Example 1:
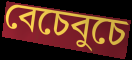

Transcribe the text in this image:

বেচেবুচে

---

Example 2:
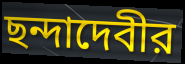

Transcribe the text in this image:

ছন্দাদেবীর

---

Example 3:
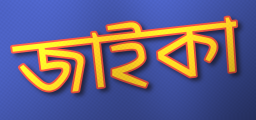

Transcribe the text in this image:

জাইকা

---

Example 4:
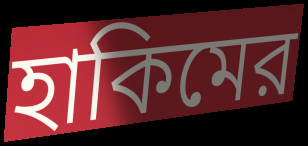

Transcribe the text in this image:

হাকিমের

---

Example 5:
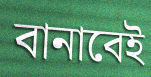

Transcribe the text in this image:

বানাবেই